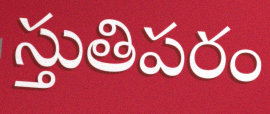
స్తుతిపరం